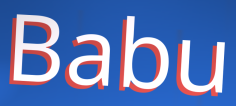
Babu